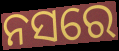
ନସରେ